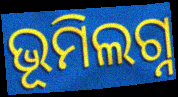
ଭୂମିଲଗ୍ନ